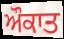
ਔਕਾਤ